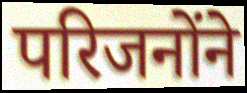
परिजनोंने